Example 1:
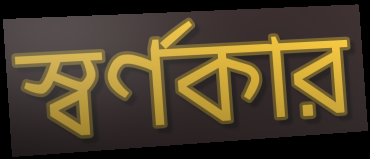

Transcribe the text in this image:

স্বর্ণকার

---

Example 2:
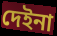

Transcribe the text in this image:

দেইনা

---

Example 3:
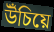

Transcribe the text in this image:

উঁচিয়ে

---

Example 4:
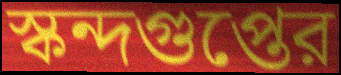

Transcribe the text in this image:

স্কন্দগুপ্তের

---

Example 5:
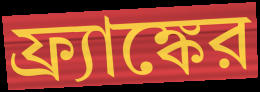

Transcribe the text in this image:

ফ্র্যাঙ্কের